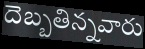
దెబ్బతిన్నవారు